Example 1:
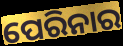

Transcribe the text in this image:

ପେରିନାର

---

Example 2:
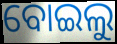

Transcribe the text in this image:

ବୋଇଲୁ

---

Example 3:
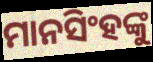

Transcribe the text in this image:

ମାନସିଂହଙ୍କୁ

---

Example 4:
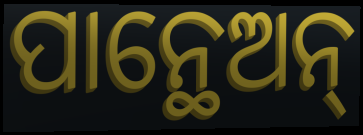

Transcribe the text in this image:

ପାନ୍ଥେଅନ୍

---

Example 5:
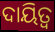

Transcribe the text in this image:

ଦାୟିତ୍ବ